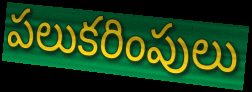
పలుకరింపులు